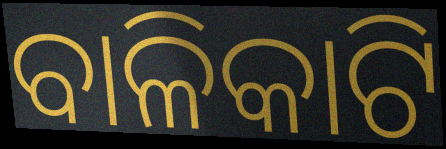
ବାଳିକାଟି